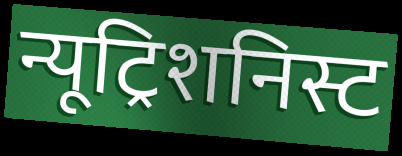
न्‍यूट्रिशनिस्‍ट